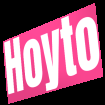
Hoyto